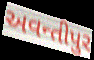
અવન્તીપુર